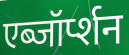
एब्जॉर्प्शन